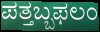
ಪತ್ತಬ್ಬಫಲಂ